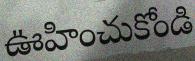
ఊహించుకోండి